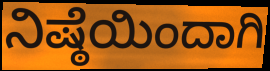
ನಿಷ್ಠೆಯಿಂದಾಗಿ